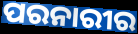
ପରନାରୀର